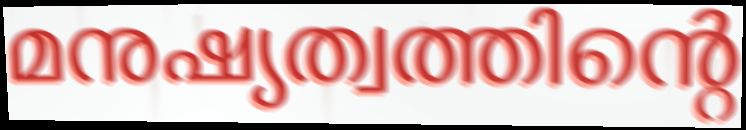
മനുഷ്യത്വത്തിന്റെ